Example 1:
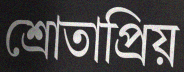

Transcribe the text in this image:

শ্রোতাপ্রিয়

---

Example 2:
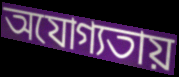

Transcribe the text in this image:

অযোগ্যতায়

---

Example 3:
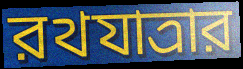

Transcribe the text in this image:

রথযাত্রার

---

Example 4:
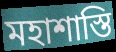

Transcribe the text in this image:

মহাশাস্তি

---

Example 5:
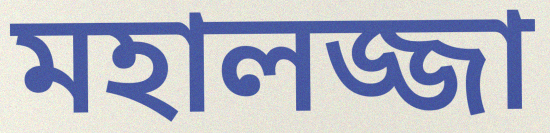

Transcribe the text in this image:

মহালজ্জা